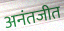
अनंतजीत